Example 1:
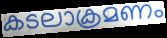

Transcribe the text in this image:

കടലാക്രമണം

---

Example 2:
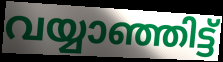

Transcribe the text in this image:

വയ്യാഞ്ഞിട്ട്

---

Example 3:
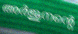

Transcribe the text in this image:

അർജുനന്റെ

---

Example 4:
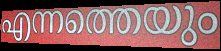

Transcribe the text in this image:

എന്നത്തെയും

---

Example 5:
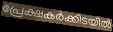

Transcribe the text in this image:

പ്രേക്ഷകർക്കിടയിൽ